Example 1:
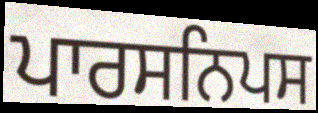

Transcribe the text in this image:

ਪਾਰਸਨਿਪਸ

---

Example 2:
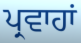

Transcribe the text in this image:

ਪ੍ਰਵਾਹਾਂ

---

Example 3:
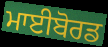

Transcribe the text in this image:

ਮਾਈਬੋਰਡ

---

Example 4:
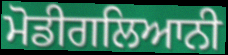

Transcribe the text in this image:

ਮੋਡੀਗਲਿਆਨੀ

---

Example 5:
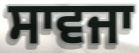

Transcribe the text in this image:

ਸਾਵਜਾ